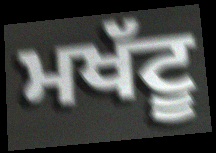
ਮਖੱਟੂ